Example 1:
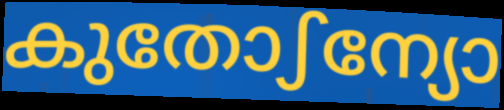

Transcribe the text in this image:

കുതോഽന്യോ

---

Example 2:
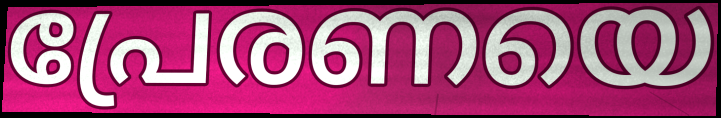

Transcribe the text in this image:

പ്രേരണയെ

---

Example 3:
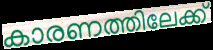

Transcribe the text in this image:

കാരണത്തിലേക്ക്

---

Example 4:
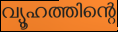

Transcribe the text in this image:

വ്യൂഹത്തിന്റെ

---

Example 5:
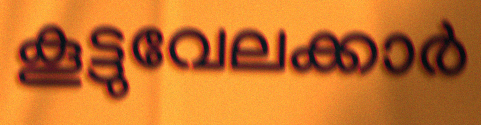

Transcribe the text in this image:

കൂട്ടുവേലക്കാർ